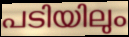
പടിയിലും